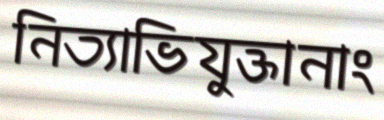
নিত্যাভিযুক্তানাং